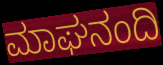
ಮಾಘನಂದಿ